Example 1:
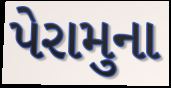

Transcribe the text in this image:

પેરામુના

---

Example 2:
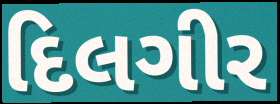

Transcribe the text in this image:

દિલગીર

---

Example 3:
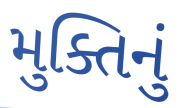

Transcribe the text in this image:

મુક્તિનું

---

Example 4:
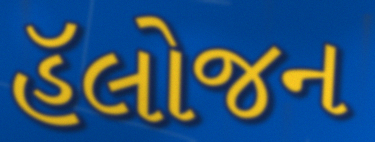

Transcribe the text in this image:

હૅલોજન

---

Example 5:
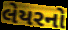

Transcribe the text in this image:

લેયરનો